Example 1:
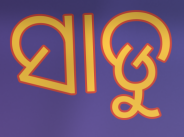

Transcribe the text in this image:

ସାଡୁ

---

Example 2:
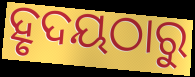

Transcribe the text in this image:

ହୃଦୟଠାରୁ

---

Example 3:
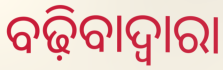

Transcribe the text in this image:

ବଢ଼ିବାଦ୍ୱାରା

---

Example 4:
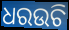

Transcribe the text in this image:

ଧରଉଚି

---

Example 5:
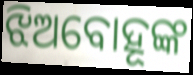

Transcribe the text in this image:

ଝିଅବୋହୂଙ୍କ